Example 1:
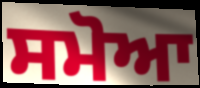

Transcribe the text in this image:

ਸਮੋਆ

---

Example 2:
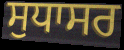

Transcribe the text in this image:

ਸੁਧਾਸਰ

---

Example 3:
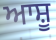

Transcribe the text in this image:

ਆਸ਼ੂ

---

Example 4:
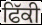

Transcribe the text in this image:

ਫਿੱਕੀ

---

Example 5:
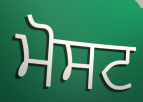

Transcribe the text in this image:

ਮੋਸਟ